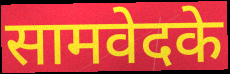
सामवेदके